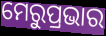
ମେରୁପ୍ରଭାର